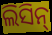
ଲିସିନ୍